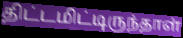
திட்டமிட்டிருந்தாள்